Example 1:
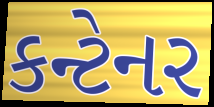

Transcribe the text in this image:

કન્ટેનર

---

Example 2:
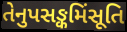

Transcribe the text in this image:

તેનુપસઙ્કમિંસૂતિ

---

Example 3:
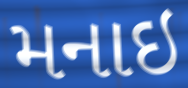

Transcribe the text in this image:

મનાઇ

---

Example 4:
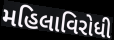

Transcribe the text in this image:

મહિલાવિરોધી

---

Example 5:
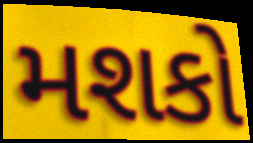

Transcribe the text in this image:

મશકો